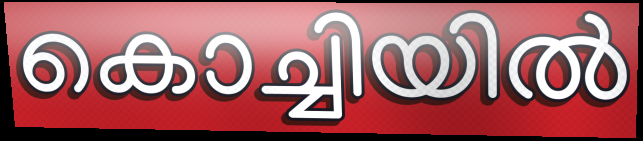
കൊച്ചിയിൽ